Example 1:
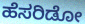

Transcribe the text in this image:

ಹೆಸರಿಡೋ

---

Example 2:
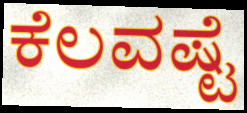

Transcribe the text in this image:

ಕೆಲವಷ್ಟೆ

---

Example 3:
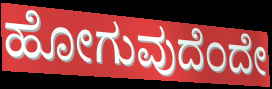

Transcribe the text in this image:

ಹೋಗುವುದೆಂದೇ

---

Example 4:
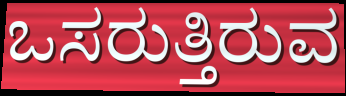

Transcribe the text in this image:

ಒಸರುತ್ತಿರುವ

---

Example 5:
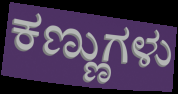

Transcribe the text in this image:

ಕಣ್ಣುಗಳು